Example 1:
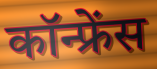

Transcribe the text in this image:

कॉन्फ्रेंस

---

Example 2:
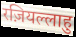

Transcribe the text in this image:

रज़ियल्लाहु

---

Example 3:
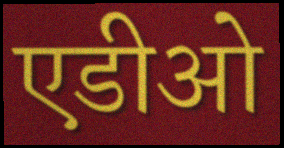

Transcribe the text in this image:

एडीओ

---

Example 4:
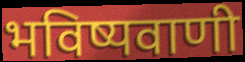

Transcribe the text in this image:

भविष्यवाणी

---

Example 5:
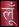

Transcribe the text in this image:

लूँ